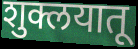
शुक्लयातू